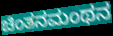
ಚಿಂತನಮಂಥನ